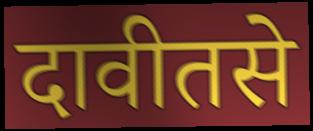
दावीतसे